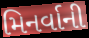
મિનર્વાની